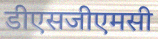
डीएसजीएमसी